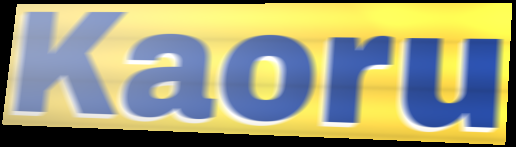
Kaoru